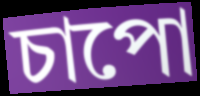
চাপো